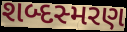
શબ્દસ્મરણ